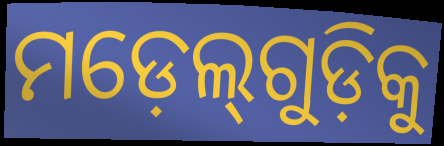
ମଡ଼େଲ୍‌ଗୁଡ଼ିକୁ